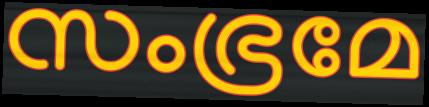
സംഭ്രമേ